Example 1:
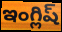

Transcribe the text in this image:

ఇంగ్లిష్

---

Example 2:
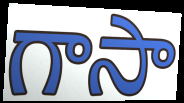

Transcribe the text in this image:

గాసా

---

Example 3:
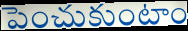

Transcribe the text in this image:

పెంచుకుంటాం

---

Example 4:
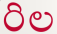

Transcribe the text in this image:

రిల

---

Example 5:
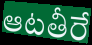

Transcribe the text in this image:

ఆటతీరే